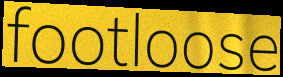
footloose